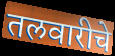
तलवारीचे